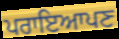
ਪਰਾਇਆਪਣ